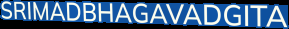
SRIMADBHAGAVADGITA